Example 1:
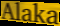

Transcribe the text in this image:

Alaka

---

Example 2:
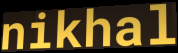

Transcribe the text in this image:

nikhal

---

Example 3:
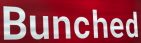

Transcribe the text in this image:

Bunched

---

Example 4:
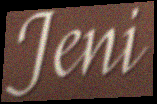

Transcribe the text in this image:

Jeni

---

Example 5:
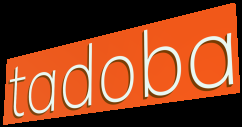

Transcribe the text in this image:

tadoba